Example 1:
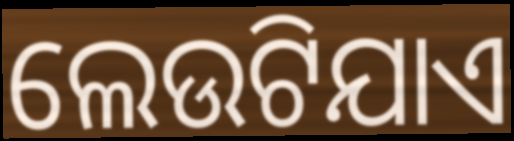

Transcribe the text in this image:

ଲେଉଟିଯାଏ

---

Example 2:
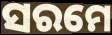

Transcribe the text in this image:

ସରମେ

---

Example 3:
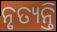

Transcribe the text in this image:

ନୃତ୍ୟନ୍ତି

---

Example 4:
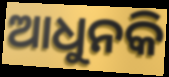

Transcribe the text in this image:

ଆଧୁନକି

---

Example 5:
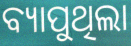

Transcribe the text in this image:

ବ୍ୟାପୁଥିଲା